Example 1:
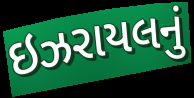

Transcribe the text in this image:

ઇઝરાયલનું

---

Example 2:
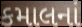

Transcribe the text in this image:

કમાલનાં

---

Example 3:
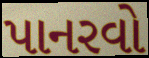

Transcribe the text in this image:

પાનરવો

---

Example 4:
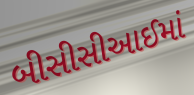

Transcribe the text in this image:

બીસીસીઆઈમાં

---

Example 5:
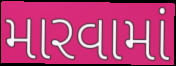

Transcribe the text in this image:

મારવામાં